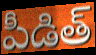
పీడిత్